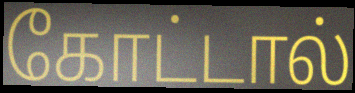
கோட்டால்